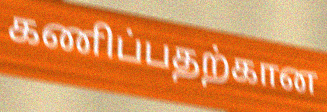
கணிப்பதற்கான